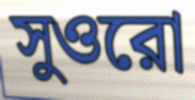
সুওরো